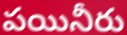
పయినీరు